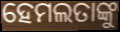
ହେମଲତାଙ୍କୁ